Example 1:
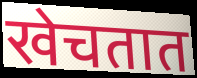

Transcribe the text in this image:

खेचतात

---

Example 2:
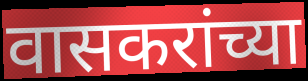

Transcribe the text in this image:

वासकरांच्या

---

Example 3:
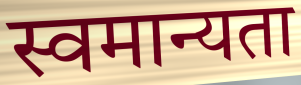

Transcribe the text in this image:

स्वमान्यता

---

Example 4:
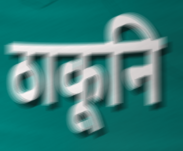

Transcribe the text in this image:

ठाकूनि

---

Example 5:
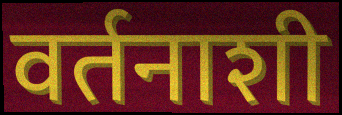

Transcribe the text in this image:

वर्तनाशी